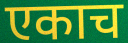
एकाच